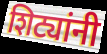
शिट्यांनी